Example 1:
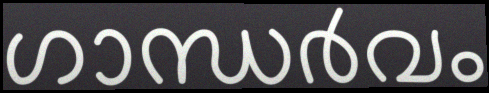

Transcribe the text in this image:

ഗാന്ധർവം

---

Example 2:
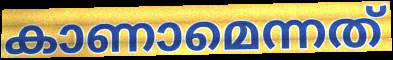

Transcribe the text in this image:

കാണാമെന്നത്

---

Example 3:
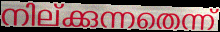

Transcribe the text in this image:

നില്ക്കുന്നതെന്ന്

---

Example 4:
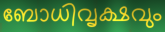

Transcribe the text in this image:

ബോധിവൃക്ഷവും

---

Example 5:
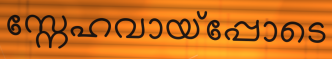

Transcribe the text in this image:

സ്നേഹവായ്പ്പോടെ